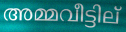
അമ്മവീട്ടില്